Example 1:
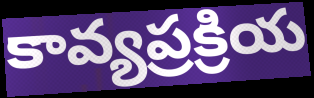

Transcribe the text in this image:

కావ్యప్రక్రియ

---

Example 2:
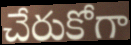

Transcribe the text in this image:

చేరుకోగా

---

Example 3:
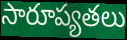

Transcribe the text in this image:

సారూప్యతలు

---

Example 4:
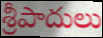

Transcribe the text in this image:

శ్రీపాదులు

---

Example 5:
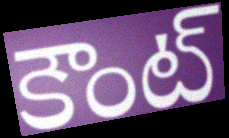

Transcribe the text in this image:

కౌంట్